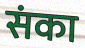
संका